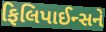
ફિલિપાઈન્સને